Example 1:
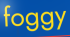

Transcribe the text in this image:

foggy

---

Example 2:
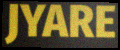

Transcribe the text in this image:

JYARE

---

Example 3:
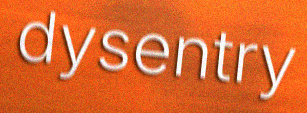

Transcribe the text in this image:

dysentry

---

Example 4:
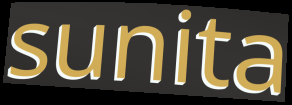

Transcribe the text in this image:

sunita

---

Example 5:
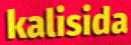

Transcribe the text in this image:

kalisida